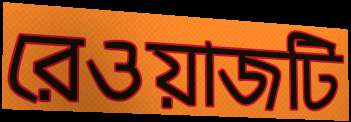
রেওয়াজটি